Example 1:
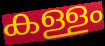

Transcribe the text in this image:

കള്ളം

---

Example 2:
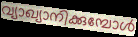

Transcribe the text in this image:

വ്യാഖ്യാനിക്കുമ്പോൾ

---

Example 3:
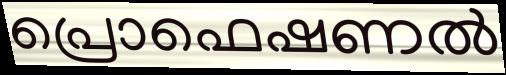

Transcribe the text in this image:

പ്രൊഫെഷണൽ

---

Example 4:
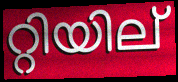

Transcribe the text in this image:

റ്റിയില്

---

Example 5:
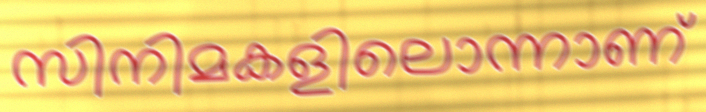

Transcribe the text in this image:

സിനിമകളിലൊന്നാണ്